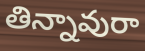
తిన్నావురా